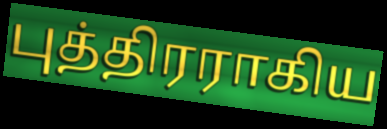
புத்திரராகிய